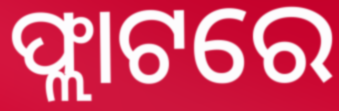
ଫ୍ଲାଟରେ